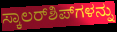
ಸ್ಕಾಲರ್‌ಶಿಪ್‌ಗಳನ್ನು